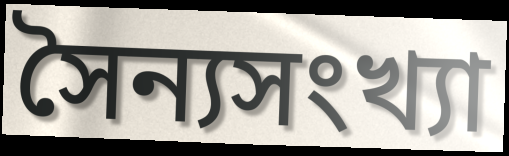
সৈন্যসংখ্যা